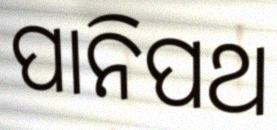
ପାନିପଥ